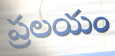
ప్రలయం